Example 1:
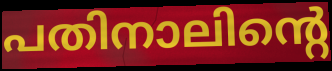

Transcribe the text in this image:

പതിനാലിന്റെ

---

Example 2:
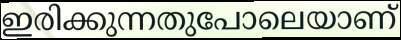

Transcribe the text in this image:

ഇരിക്കുന്നതുപോലെയാണ്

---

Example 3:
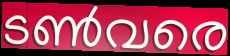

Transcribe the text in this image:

ടൺവരെ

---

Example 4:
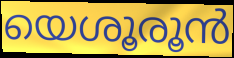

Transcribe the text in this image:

യെശൂരൂൻ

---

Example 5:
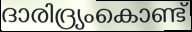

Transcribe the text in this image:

ദാരിദ്ര്യംകൊണ്ട്